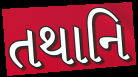
તથાનિ